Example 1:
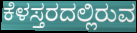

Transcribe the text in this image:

ಕೆಳಸ್ತರದಲ್ಲಿರುವ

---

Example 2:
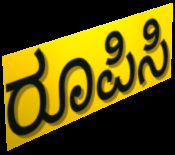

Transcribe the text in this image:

ರೂಪಿಸಿ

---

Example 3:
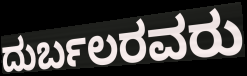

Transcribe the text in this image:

ದುರ್ಬಲರವರು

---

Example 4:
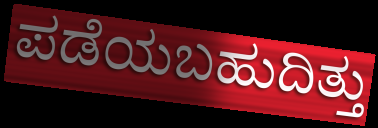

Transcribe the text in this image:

ಪಡೆಯಬಹುದಿತ್ತು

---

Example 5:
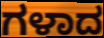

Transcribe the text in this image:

ಗಳಾದ